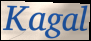
Kagal